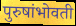
पुरुषांभोवती